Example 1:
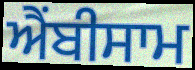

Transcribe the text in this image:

ਐਂਬੀਸਾਮ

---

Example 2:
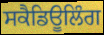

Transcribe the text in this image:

ਸਕੈਡਿਊਲਿੰਗ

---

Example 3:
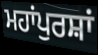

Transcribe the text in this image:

ਮਹਾਂਪੁਰਸ਼ਾਂ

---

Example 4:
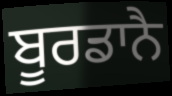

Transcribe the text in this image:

ਬੂਰਡਾਨੈ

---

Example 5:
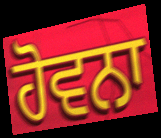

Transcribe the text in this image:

ਹੋਵਨਾ